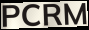
PCRM